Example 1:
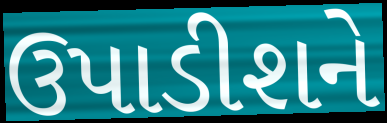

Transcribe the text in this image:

ઉપાડીશને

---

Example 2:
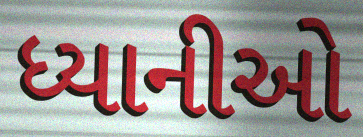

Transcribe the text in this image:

ધ્યાનીઓ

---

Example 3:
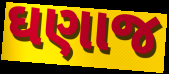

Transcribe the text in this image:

ઘણાજ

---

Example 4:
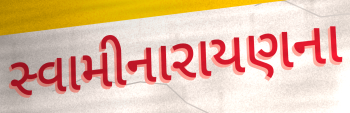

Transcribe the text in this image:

સ્વામીનારાયણના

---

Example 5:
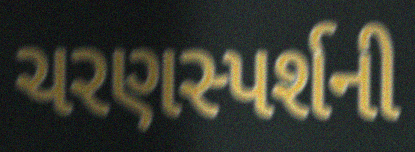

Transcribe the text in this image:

ચરણસ્પર્શની